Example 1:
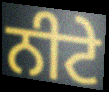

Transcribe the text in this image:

ਨੀਟੇ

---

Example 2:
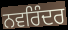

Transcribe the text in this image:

ਨਵਰਿੰਦਰ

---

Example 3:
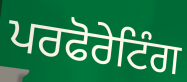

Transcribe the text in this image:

ਪਰਫੋਰੇਟਿੰਗ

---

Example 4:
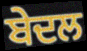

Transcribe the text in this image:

ਬੇਦਲ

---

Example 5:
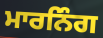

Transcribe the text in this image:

ਮਾਰਨਿੰਗ